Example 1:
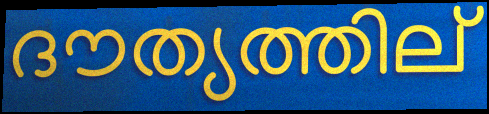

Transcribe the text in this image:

ദൗത്യത്തില്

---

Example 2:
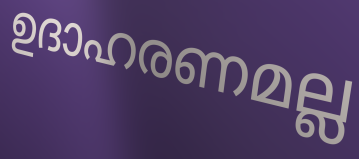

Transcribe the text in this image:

ഉദാഹരണമല്ല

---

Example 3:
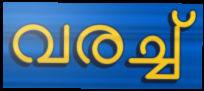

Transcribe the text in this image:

വരച്ച്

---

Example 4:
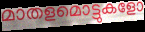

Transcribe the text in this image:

മാതളമൊട്ടുകളോ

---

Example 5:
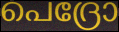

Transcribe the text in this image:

പെദ്രോ